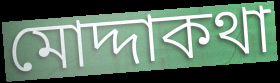
মোদ্দাকথা